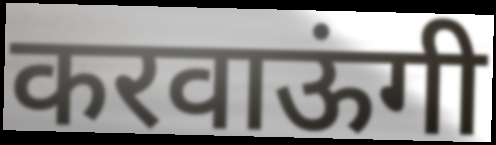
करवाऊंगी